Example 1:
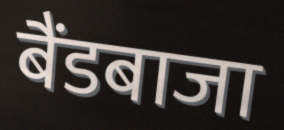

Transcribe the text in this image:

बैंडबाजा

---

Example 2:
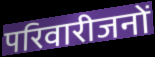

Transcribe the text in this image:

परिवारीजनों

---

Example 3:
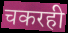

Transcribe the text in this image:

चकरही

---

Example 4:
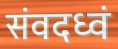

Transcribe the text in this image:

संवदध्वं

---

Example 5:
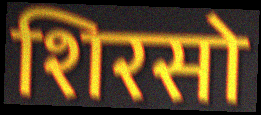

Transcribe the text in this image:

शिरसो